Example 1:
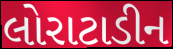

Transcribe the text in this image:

લોરાટાડીન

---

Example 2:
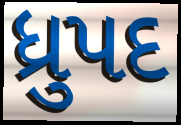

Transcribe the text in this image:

ધ્રુપદ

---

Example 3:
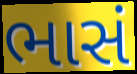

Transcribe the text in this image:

ભાસં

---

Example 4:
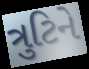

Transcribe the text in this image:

ત્રુટિને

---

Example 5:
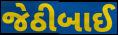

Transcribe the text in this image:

જેઠીબાઈ